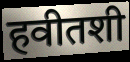
हवीतशी